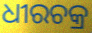
ଧୀରଚକ୍ର